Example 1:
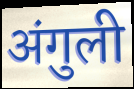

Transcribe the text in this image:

अंगुली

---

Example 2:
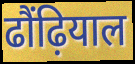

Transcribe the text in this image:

ढौंढ़ियाल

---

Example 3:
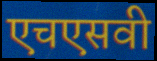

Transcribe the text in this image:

एचएसवी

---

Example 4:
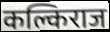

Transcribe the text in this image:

कल्किराज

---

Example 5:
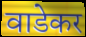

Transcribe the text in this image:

वाडेकर